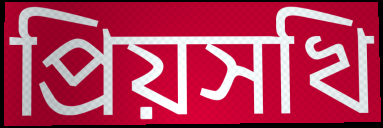
প্রিয়সখি